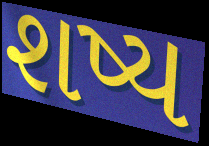
શષ્ય